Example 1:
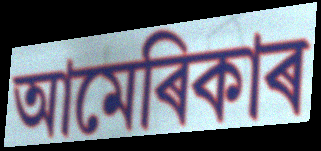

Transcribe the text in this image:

আমেৰিকাৰ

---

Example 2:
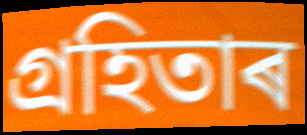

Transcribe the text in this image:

গ্ৰহিতাৰ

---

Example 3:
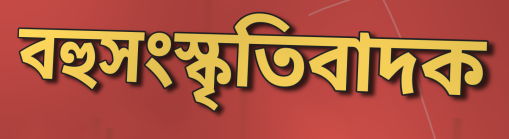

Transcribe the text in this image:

বহুসংস্কৃতিবাদক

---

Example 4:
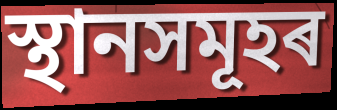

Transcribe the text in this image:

স্থানসমূহৰ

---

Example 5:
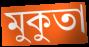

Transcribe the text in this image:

মুকুতা